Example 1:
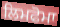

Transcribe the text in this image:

ਲਿਮਫੋਮਾ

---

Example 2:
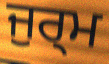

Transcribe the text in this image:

ਜੁਰ੍ਮ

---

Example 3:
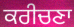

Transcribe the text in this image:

ਕਰੀਚਣਾ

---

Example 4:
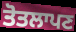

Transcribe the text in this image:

ਤੋਤਲਾਪਣ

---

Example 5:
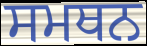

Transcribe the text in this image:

ਸਮਥਨ